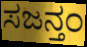
ಸಜನ್ತಂ